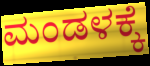
ಮಂಡಳಕ್ಕೆ